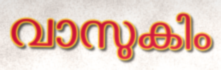
വാസുകിം